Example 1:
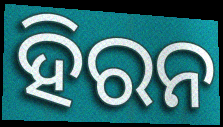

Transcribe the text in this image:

ହିରନ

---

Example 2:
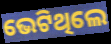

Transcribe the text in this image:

ଭେଟିଥିଲେ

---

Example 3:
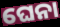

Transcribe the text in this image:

ଘେନା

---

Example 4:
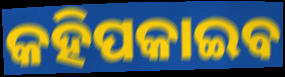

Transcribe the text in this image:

କହିପକାଇବ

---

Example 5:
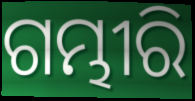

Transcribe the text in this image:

ଗମ୍ଭୀରି